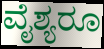
ವೈಶ್ಯರೂ